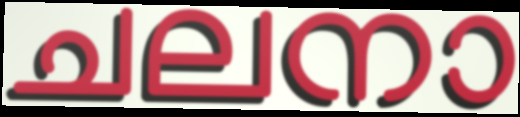
ചലനാ